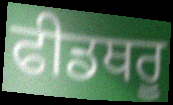
ਫੀਡਥਰੂ